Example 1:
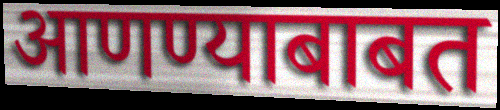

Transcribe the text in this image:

आणण्याबाबत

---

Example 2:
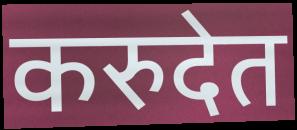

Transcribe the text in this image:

करुदेत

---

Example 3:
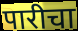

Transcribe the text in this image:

पारीचा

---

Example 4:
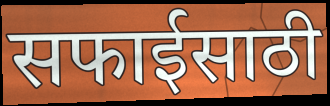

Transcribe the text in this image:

सफाईसाठी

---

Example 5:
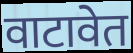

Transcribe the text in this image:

वाटावेत